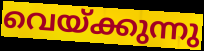
വെയ്ക്കുന്നു